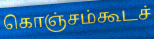
கொஞ்சம்கூடச்